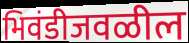
भिवंडीजवळील